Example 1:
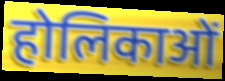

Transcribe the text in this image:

होलिकाओं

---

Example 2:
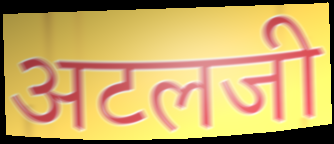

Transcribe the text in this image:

अटलजी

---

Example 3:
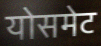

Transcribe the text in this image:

योसमेट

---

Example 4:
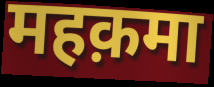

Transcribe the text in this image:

महक़मा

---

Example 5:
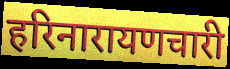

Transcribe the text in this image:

हरिनारायणचारी